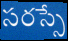
సరస్సే